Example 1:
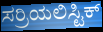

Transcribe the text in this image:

ಸರ್ರಿಯಲಿಸ್ಟಿಕ್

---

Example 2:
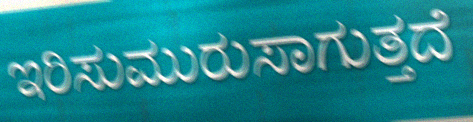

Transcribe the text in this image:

ಇರಿಸುಮುರುಸಾಗುತ್ತದೆ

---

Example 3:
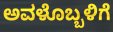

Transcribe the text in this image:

ಅವಳೊಬ್ಬಳಿಗೆ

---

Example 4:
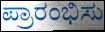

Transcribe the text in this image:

ಪ್ರಾರಂಭಿಸು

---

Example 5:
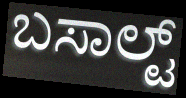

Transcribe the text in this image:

ಬಸಾಲ್ಟ್